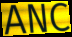
ANC